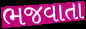
ભજવાતા